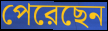
পেরেছেন